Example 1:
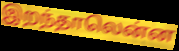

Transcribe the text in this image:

இறந்தாலென்ன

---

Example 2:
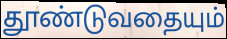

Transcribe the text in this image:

தூண்டுவதையும்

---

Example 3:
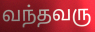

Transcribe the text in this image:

வந்தவரு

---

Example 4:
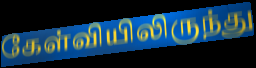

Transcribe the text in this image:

கேள்வியிலிருந்து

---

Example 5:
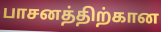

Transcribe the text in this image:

பாசனத்திற்கான